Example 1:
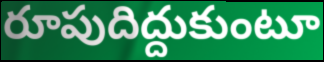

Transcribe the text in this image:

రూపుదిద్దుకుంటూ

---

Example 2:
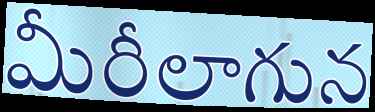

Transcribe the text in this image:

మీరీలాగున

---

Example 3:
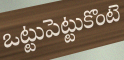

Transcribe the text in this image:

ఒట్టుపెట్టుకొంటె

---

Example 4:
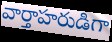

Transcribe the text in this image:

వార్తాహరుడిగా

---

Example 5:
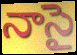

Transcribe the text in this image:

నాసై